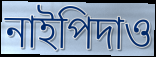
নাইপিদাও